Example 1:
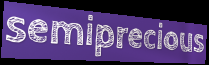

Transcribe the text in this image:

semiprecious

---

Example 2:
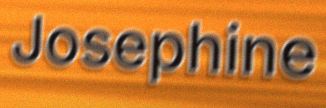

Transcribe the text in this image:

Josephine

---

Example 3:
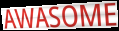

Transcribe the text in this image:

AWASOME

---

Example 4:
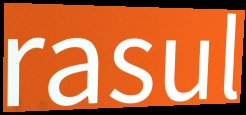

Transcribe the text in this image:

rasul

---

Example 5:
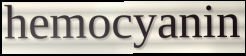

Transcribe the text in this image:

hemocyanin